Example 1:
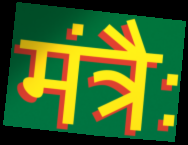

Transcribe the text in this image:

मंत्रैः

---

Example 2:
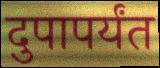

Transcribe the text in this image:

दुपापर्यंत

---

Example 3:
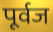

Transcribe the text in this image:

पूर्वज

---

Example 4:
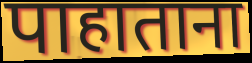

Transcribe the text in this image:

पाहाताना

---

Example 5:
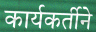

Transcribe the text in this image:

कार्यकर्तीने